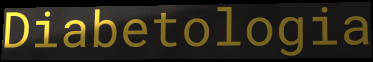
Diabetologia